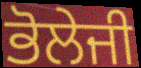
ਭੋਲੇਜੀ